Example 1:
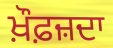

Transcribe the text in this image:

ਖ਼ੌਫ਼ਜ਼ਦਾ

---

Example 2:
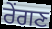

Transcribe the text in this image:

ਰੇਂਗਣ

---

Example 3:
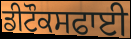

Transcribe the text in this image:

ਡੀਟੌਕਸਫਾਈ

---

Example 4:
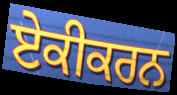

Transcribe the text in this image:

ਏਕੀਕਰਨ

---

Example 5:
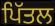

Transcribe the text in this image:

ਪਿੱਤਲ